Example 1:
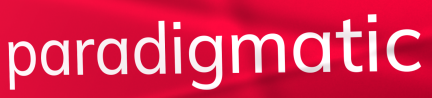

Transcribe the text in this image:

paradigmatic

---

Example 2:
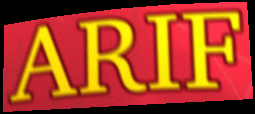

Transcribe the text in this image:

ARIF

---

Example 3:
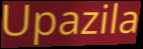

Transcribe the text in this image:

Upazila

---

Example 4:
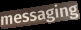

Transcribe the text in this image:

messaging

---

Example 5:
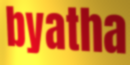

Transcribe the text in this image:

byatha